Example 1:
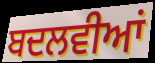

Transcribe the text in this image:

ਬਦਲਵੀਆਂ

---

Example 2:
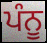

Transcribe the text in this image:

ਪੰਨੂ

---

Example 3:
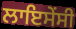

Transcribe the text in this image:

ਲਾਇਸੇਂਸੀ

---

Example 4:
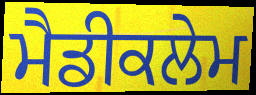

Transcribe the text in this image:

ਮੈਡੀਕਲੇਮ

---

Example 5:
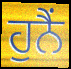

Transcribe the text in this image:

ਹੁਨੈਂ